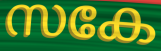
സകേ